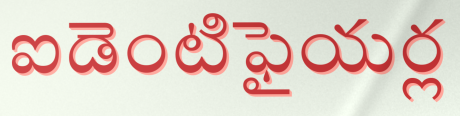
ఐడెంటిఫైయర్ల